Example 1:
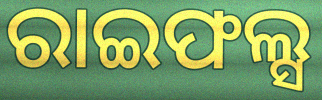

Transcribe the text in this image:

ରାଇଫଲ୍ସ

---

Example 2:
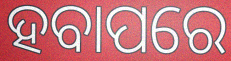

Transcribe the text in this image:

ହବାପରେ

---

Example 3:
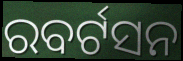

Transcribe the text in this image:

ରବର୍ଟସନ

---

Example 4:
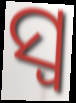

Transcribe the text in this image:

ସ୍ୱ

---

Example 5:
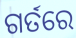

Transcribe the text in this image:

ଗର୍ତରେ